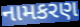
નામકરણ